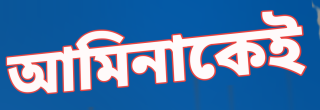
আমিনাকেই